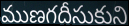
ముణగదీసుకుని